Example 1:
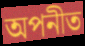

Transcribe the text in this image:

অপনীত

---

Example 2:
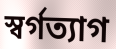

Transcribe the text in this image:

স্বর্গত্যাগ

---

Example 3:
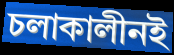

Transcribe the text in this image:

চলাকালীনই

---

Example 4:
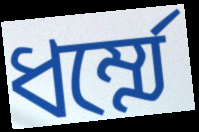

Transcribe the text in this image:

ধর্ম্মে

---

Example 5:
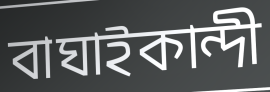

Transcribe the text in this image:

বাঘাইকান্দী